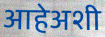
आहेअशी